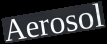
Aerosol